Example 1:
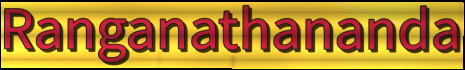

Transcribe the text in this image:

Ranganathananda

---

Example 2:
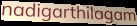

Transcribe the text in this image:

nadigarthilagam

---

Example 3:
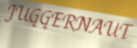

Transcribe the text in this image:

JUGGERNAUT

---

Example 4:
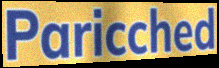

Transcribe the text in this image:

Paricched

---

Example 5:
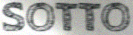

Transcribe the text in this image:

SOTTO